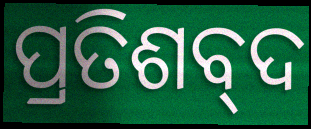
ପ୍ରତିଶବ୍‌ଦ